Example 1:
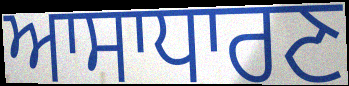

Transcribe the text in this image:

ਆਸਾਧਾਰਣ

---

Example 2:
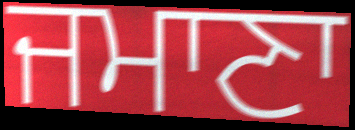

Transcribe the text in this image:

ਜਮਾਣਾ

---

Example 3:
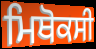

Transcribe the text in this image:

ਮਿਥੋਕਸੀ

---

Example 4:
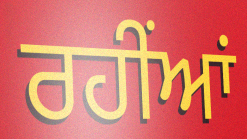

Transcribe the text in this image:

ਰਹੀਂਆਂ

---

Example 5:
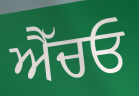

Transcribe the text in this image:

ਐੱਚਓ